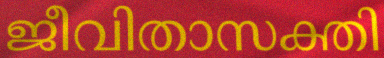
ജീവിതാസക്തി